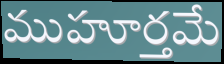
ముహూర్తమే